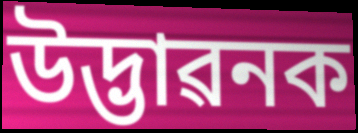
উদ্ভাৱনক